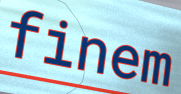
finem